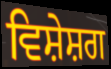
ਵਿਸ਼ੇਸ਼ਗ